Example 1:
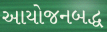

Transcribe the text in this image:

આયોજનબદ્ધ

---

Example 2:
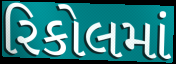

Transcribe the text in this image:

રિકોલમાં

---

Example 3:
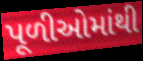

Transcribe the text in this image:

પૂળીઓમાંથી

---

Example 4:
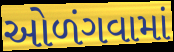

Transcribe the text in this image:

ઓળંગવામાં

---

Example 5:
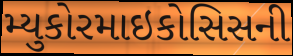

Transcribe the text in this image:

મ્યુકોરમાઇકોસિસની